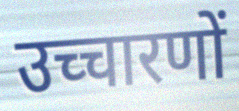
उच्चारणों